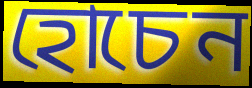
হোচেন